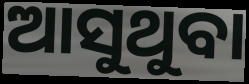
ଆସୁଥୁବା